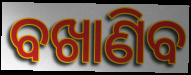
ବଖାଣିବ